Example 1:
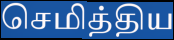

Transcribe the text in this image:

செமித்திய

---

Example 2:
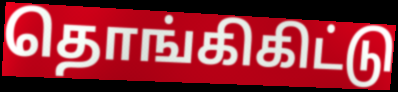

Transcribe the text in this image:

தொங்கிகிட்டு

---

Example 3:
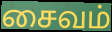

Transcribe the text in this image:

சைவம்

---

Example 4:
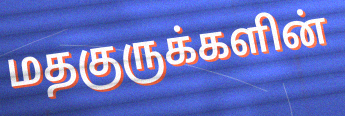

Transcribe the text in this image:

மதகுருக்களின்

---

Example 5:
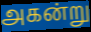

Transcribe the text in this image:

அகன்று